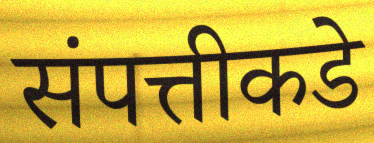
संपत्तीकडे